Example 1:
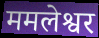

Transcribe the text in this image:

ममलेश्वर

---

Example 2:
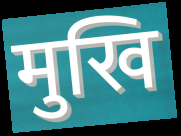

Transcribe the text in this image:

मुखि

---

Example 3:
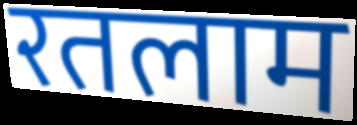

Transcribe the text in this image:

रतलाम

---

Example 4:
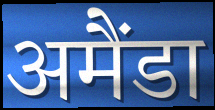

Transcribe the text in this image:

अमैंडा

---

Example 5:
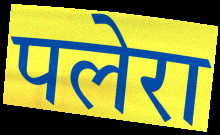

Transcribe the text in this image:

पलेरा